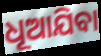
ଧୂଆଯିବା